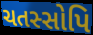
ચતસ્સોપિ